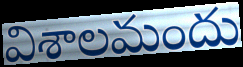
విశాలమందు